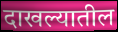
दाखल्यातील